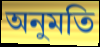
অনুমতি